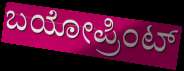
ಬಯೋಪ್ರಿಂಟ್